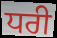
ਧਰੀ